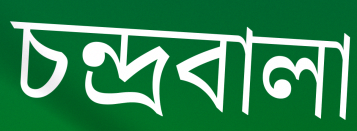
চন্দ্রবালা